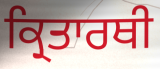
ਕ੍ਰਿਤਾਰਥੀ